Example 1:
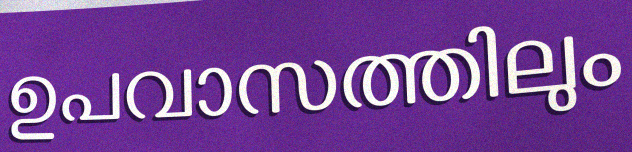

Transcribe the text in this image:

ഉപവാസത്തിലും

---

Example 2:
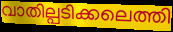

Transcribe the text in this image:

വാതില്പടിക്കലെത്തി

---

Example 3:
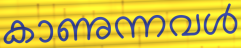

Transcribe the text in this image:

കാണുന്നവൾ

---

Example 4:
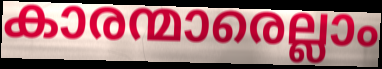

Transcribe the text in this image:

കാരന്മാരെല്ലാം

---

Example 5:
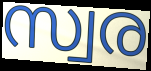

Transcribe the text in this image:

സ്വര